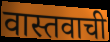
वास्तवाची